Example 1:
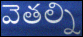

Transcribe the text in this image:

వెతల్ని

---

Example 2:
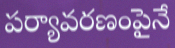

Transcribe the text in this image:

పర్యావరణంపైనే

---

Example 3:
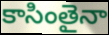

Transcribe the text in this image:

కాసింతైనా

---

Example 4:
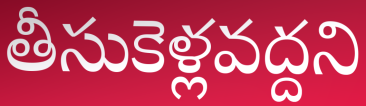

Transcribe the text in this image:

తీసుకెళ్లవద్దని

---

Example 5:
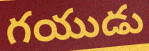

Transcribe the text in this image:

గయుడు